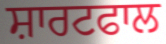
ਸ਼ਾਰਟਫਾਲ